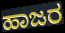
ಹಾಜರ